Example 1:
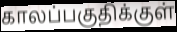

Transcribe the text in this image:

காலப்பகுதிக்குள்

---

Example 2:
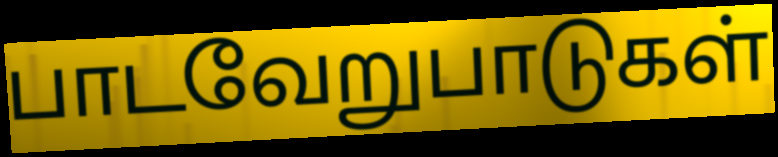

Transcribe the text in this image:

பாடவேறுபாடுகள்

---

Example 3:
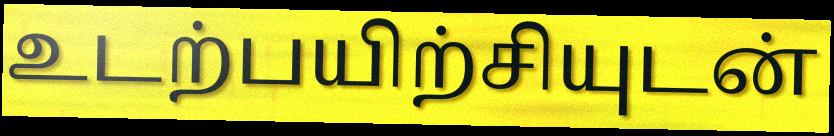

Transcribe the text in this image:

உடற்பயிற்சியுடன்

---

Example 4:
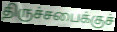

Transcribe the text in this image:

திருச்சபைக்குச்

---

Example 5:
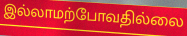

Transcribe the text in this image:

இல்லாமற்போவதில்லை